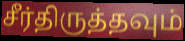
சீர்திருத்தவும்